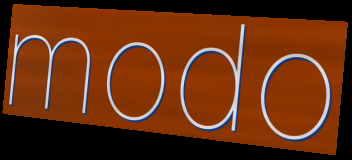
modo